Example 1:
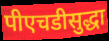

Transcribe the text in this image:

पीएचडीसुद्धा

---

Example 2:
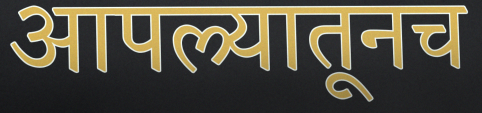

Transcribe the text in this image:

आपल्यातूनच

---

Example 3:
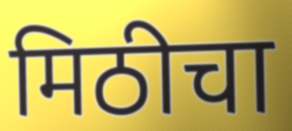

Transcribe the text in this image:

मिठीचा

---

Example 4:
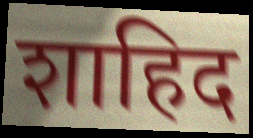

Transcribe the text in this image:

शाहिद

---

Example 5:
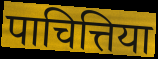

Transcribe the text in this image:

पाचित्तिया